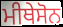
ਮੀਥੇਸੋਨ